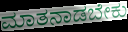
ಮಾತನಾಡಬೇಕು